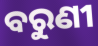
ବରୁଣୀ